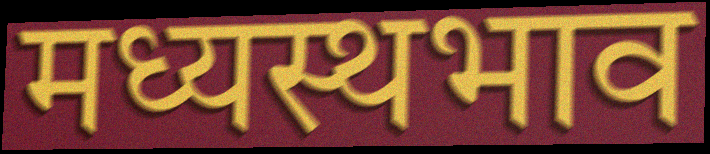
मध्यस्थभाव